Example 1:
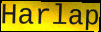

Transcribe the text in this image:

Harlap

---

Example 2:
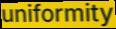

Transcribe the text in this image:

uniformity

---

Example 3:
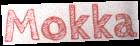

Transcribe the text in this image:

Mokka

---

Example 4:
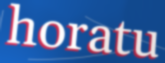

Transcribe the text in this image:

horatu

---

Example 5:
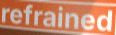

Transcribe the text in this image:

refrained